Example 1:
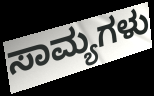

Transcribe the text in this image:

ಸಾಮ್ಯಗಳು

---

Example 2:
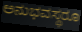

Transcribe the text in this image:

ಅನುಭವಸ್ಥರೂ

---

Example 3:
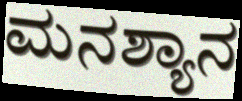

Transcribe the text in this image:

ಮನಶ್ಯಾನ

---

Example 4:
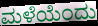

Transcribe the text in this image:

ಮಳೆಯೆಂದು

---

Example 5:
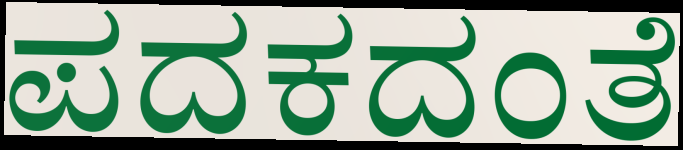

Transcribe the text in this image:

ಪದಕದಂತೆ